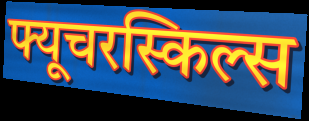
फ्यूचरस्किल्स